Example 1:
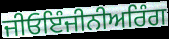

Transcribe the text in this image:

ਜੀਓਇੰਜੀਨੀਅਰਿੰਗ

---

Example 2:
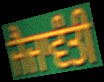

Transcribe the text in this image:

ਜੈਜਾਵੰਤੀ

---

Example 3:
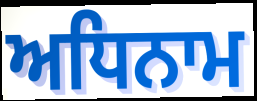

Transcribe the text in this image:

ਅਧਿਨਾਮ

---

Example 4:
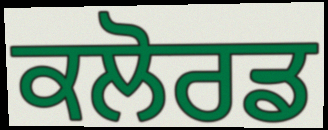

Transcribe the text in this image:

ਕਲੋਰਡ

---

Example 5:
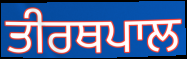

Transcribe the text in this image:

ਤੀਰਥਪਾਲ